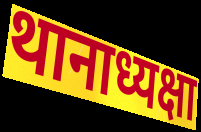
थानाध्यक्षा